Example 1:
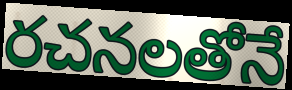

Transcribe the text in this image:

రచనలతోనే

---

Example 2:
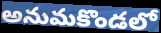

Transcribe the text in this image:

అనుమకొండలో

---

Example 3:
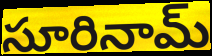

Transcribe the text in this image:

సూరినామ్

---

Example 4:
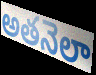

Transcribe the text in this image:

అతనెలా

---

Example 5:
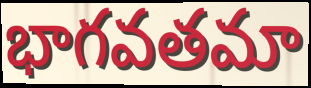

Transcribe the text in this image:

భాగవతమా